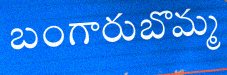
బంగారుబొమ్మ